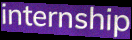
internship